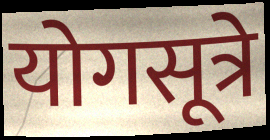
योगसूत्रे